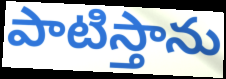
పాటిస్తాను